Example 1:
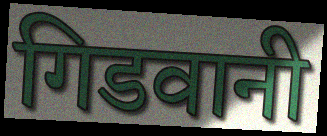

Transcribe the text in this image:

गिडवानी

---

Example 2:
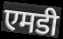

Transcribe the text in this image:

एमडी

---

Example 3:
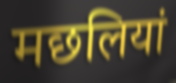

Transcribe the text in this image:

मछलियां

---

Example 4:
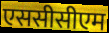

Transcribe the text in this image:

एससीसीएम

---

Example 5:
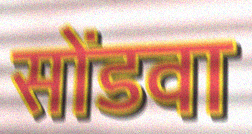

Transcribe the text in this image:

सोंडवा